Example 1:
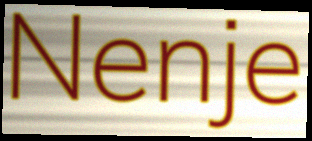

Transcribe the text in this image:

Nenje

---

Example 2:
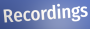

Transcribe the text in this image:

Recordings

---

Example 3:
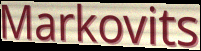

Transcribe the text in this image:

Markovits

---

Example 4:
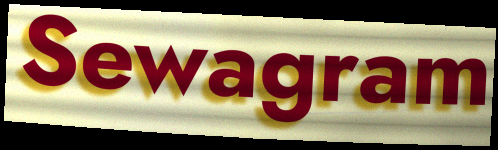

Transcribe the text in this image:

Sewagram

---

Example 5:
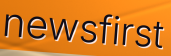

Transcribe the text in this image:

newsfirst